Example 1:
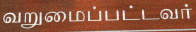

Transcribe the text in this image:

வறுமைப்பட்டவர்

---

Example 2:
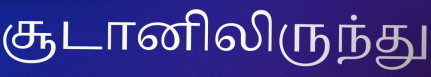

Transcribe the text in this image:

சூடானிலிருந்து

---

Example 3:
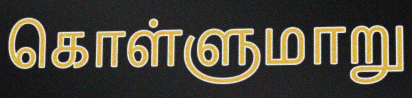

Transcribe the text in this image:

கொள்ளுமாறு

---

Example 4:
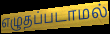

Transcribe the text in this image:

எழுதப்படாமல்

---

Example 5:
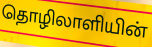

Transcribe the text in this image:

தொழிலாளியின்